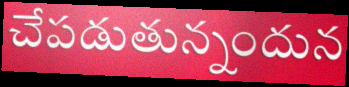
చేపడుతున్నందున